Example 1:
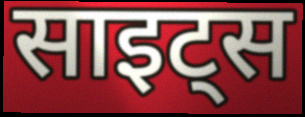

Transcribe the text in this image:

साइट्स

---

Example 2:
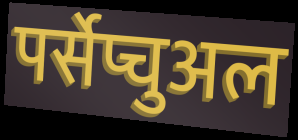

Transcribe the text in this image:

पर्सेप्चुअल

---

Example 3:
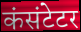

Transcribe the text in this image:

कंसंटेटर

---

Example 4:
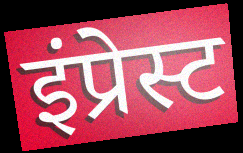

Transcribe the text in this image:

इंप्रेस्ट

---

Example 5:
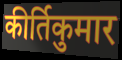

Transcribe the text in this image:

कीर्तिकुमार